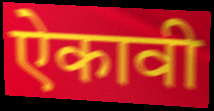
ऐकावी